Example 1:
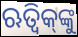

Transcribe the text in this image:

ଋତ୍ୱିକ୍‌ଙ୍କୁ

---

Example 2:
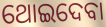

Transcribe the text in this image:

ଥୋଇଦେବା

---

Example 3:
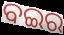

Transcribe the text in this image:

ବଇର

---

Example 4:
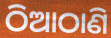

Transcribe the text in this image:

ଠିଆଠାଣି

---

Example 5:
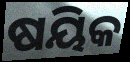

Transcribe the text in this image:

ଷୟିକ